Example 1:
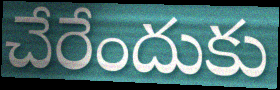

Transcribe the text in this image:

చేరేందుకు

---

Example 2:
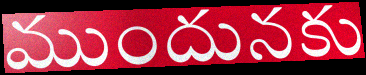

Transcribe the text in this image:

ముందునకు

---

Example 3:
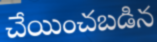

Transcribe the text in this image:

చేయించబడిన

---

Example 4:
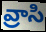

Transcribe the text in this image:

వ్రాసి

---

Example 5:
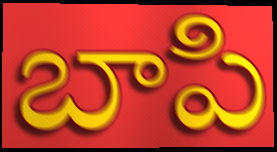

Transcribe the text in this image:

బాపి